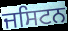
ਜਸਿਟਨ